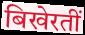
बिखेरतीं